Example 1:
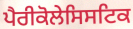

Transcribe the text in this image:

ਪੈਰੀਕੋਲੇਸਿਸਟਿਕ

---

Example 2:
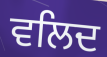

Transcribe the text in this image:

ਵਲਿਦ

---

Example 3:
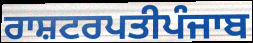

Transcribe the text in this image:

ਰਾਸ਼ਟਰਪਤੀਪੰਜਾਬ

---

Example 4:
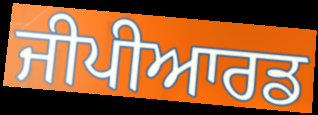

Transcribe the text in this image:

ਜੀਪੀਆਰਡ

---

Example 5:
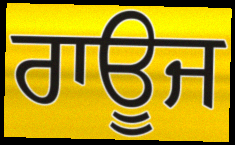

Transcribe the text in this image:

ਰਾਊਜ